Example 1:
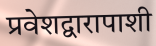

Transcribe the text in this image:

प्रवेशद्वारापाशी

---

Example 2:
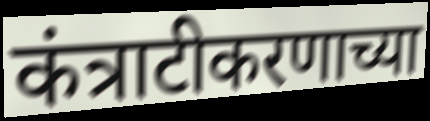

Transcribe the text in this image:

कंत्राटीकरणाच्या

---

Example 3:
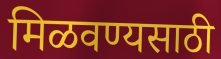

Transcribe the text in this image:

मिळवण्यसाठी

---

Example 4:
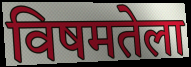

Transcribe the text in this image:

विषमतेला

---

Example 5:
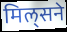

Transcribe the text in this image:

मिल्सने